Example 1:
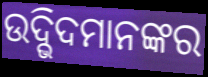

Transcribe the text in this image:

ଉଦ୍ଭିଦମାନଙ୍କର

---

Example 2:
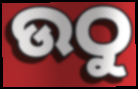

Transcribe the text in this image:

ଉଠୁ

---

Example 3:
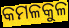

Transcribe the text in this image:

କମଳକୁଳ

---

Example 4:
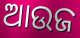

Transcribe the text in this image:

ଆଉଜ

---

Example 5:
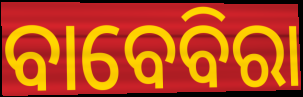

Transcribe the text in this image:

ବାବେବିରା